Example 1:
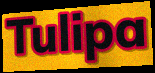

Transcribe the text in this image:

Tulipa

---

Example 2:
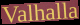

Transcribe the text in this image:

Valhalla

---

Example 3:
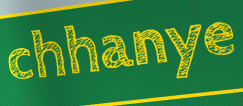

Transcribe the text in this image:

chhanye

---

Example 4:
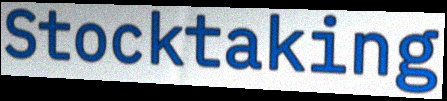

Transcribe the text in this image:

Stocktaking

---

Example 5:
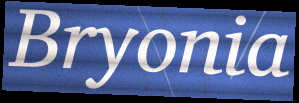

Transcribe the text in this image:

Bryonia